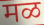
मळ